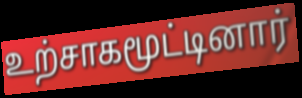
உற்சாகமூட்டினார்